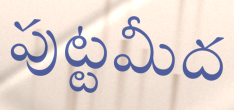
పుట్టమీద